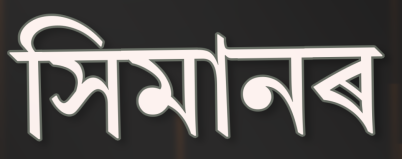
সিমানৰ